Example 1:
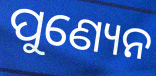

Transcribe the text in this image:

ପୁଣ୍ୟେନ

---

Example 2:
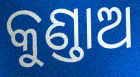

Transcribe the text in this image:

କୁଣ୍ଡାଅ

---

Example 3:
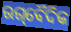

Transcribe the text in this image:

ଋଗ୍‌ବୈଦିକ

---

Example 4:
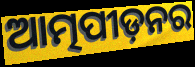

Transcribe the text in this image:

ଆତ୍ମପୀଡ଼ନର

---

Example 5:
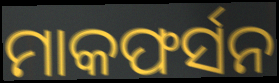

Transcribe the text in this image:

ମାକଫର୍ସନ